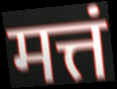
मत्तं